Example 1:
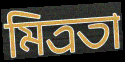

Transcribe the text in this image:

মিত্ৰতা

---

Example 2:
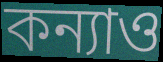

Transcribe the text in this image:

কন্যাও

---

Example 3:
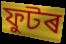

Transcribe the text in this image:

ফুটৰ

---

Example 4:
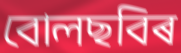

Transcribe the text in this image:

বোলছবিৰ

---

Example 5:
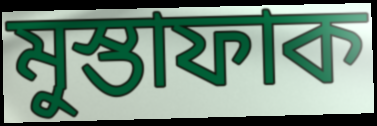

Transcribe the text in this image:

মুস্তাফাক